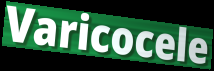
Varicocele